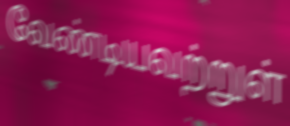
வேண்டியவற்றுள்